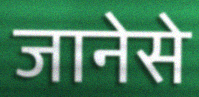
जानेसे